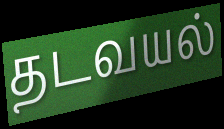
தடவயல்